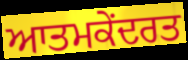
ਆਤਮਕੇਂਦਰਤ